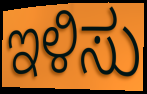
ಇಳಿಸು